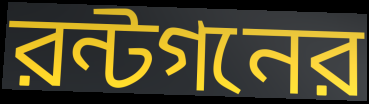
রন্টগনের